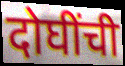
दोघींची